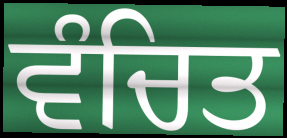
ਵੰਚਿਤ